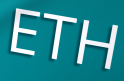
ETH